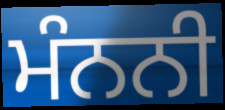
ਮੰਨਨੀ